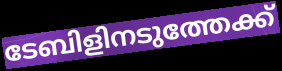
ടേബിളിനടുത്തേക്ക്